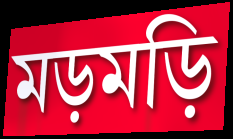
মড়মড়ি